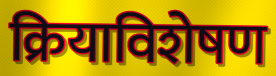
क्रियाविशेषण